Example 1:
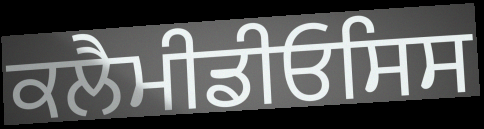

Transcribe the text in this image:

ਕਲੈਮੀਡੀਓਸਿਸ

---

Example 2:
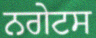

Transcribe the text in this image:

ਨਗੇਟਸ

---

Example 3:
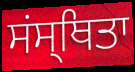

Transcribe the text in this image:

ਸਂਸ੍ਥਿਤਾ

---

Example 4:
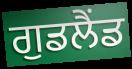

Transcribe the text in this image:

ਗੁਡਲੈਂਡ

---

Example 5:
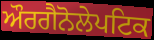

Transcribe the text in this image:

ਔਰਗੈਨੋਲੇਪਟਿਕ